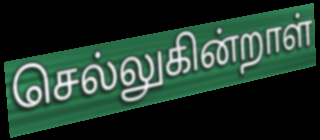
செல்லுகின்றாள்